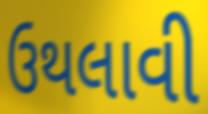
ઉથલાવી